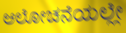
ಆಲೋಚನೆಯಲ್ಲೇ